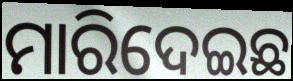
ମାରିଦେଇଛ